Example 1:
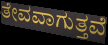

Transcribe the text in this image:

ತೇವವಾಗುತ್ತವೆ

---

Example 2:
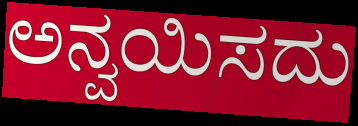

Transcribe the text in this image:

ಅನ್ವಯಿಸದು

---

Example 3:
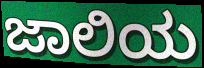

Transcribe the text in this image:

ಜಾಲಿಯ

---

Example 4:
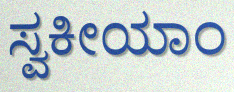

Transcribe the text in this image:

ಸ್ವಕೀಯಾಂ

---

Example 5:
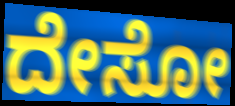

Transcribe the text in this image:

ದೇಸೋ